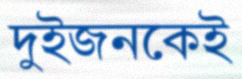
দুইজনকেই